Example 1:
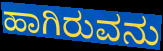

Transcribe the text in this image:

ಹಾಗಿರುವನು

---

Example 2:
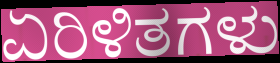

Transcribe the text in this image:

ಏರಿಳಿತಗಳು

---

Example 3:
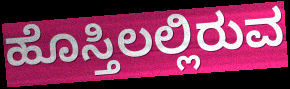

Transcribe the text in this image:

ಹೊಸ್ತಿಲಲ್ಲಿರುವ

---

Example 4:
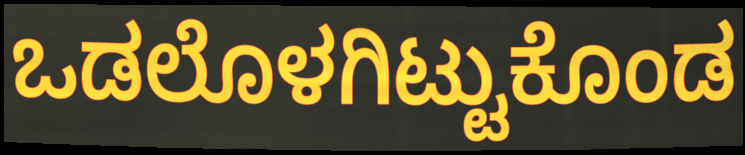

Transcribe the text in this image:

ಒಡಲೊಳಗಿಟ್ಟುಕೊಂಡ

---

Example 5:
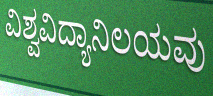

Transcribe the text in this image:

ವಿಶ್ವವಿದ್ಯಾನಿಲಯವು